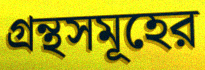
গ্রন্থসমূহের